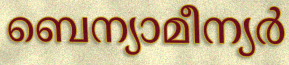
ബെന്യാമീന്യർ